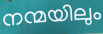
നന്മയിലും